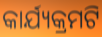
କାର୍ଯ୍ୟକ୍ରମଟି